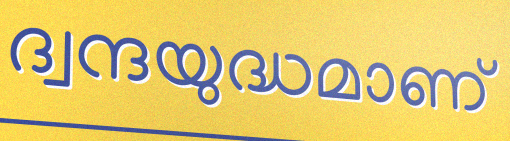
ദ്വന്ദയുദ്ധമാണ്